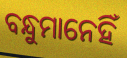
ବନ୍ଧୁମାନେହିଁ